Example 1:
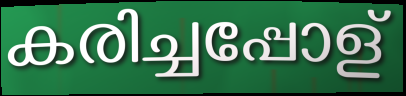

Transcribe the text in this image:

കരിച്ചപ്പോള്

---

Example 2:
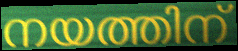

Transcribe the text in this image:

നയത്തിന്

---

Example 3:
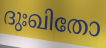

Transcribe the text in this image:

ദുഃഖിതോ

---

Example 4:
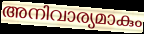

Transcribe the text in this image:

അനിവാര്യമാകും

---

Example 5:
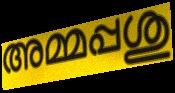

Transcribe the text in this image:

അമ്മപ്പശു